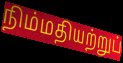
நிம்மதியற்றுப்